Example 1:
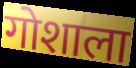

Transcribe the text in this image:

गोशाला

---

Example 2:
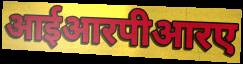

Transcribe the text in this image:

आईआरपीआरए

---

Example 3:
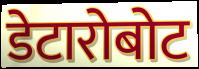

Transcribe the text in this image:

डेटारोबोट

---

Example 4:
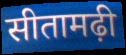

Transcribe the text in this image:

सीतामढ़ी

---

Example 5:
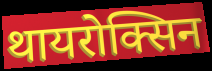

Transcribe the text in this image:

थायरोक्सिन